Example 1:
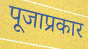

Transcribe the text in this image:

पूजाप्रकार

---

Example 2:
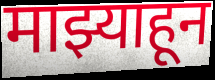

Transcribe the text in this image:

माझ्याहून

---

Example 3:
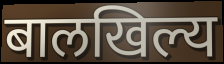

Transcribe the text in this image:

बालखिल्य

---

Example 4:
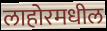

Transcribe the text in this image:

लाहोरमधील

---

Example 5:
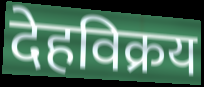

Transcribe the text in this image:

देहविक्रय